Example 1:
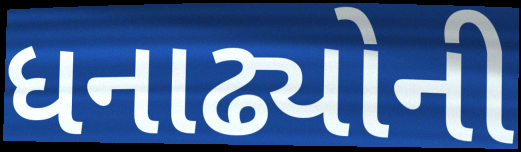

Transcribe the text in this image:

ધનાઢ્યોની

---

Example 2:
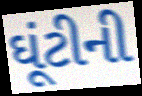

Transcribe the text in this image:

ઘૂંટીની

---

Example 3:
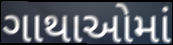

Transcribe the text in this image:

ગાથાઓમાં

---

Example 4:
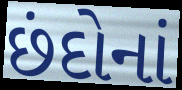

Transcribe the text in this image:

છંદોનાં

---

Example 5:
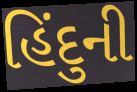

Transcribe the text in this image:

હિંદુની